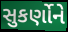
સુકર્ણોને